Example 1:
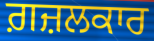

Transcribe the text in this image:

ਗ਼ਜ਼ਲਕਾਰ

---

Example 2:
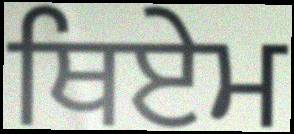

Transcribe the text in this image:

ਥਿਏਮ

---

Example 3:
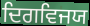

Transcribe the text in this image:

ਦਿਗਵਿਜਯ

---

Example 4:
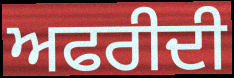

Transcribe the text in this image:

ਅਫਰੀਦੀ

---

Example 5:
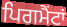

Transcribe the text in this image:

ਪਿਗਮੈਂਟਾਂ